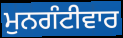
ਮੁਨਗੰਟੀਵਾਰ